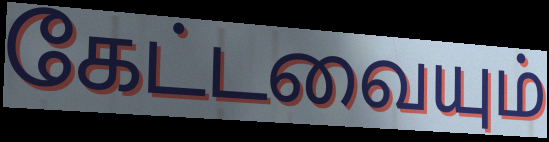
கேட்டவையும்